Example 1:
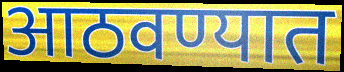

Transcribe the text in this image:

आठवण्यात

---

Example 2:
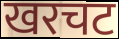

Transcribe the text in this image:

खरचट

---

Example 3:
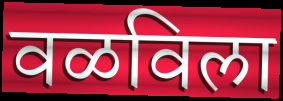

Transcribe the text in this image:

वळविला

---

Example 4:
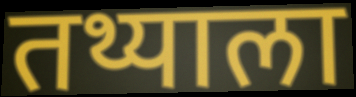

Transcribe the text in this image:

तथ्याला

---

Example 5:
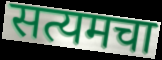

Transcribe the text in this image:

सत्यमचा